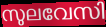
സുലവേസി